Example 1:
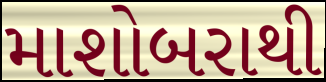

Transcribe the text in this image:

માશોબરાથી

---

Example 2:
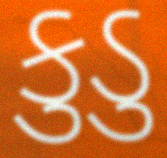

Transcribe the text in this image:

કુડુ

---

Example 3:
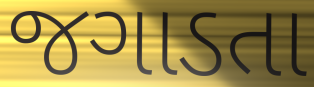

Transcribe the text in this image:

જગાડતા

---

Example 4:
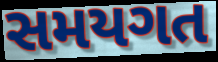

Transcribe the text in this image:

સમયગત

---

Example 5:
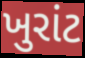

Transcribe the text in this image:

ખુરાંટ